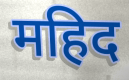
महिद